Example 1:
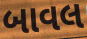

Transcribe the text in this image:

બાવલ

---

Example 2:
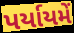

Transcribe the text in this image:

પર્યાયમેં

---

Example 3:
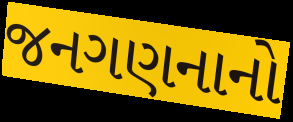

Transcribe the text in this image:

જનગણનાનો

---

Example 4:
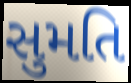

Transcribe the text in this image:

સુમતિ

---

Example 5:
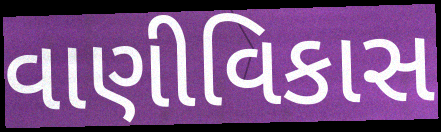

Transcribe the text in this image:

વાણીવિકાસ